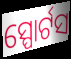
ସ୍ପୋର୍ଟସ